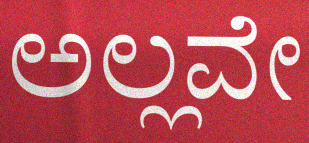
ಅಲ್ಲವೇ